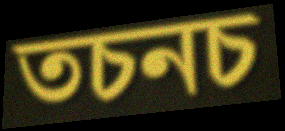
তচনচ